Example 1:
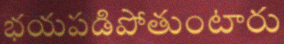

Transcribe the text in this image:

భయపడిపోతుంటారు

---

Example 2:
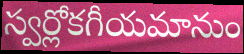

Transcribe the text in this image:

స్వర్లోకగీయమానుం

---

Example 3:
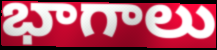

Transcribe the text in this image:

భాగాలు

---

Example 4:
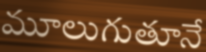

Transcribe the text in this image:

మూలుగుతూనే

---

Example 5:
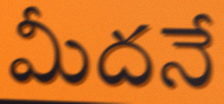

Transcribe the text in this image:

మీదనే